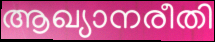
ആഖ്യാനരീതി